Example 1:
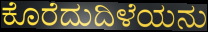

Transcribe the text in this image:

ಕೊರೆದುದಿಳೆಯನು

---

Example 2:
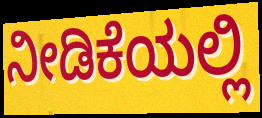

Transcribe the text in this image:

ನೀಡಿಕೆಯಲ್ಲಿ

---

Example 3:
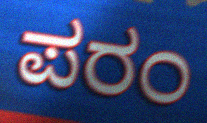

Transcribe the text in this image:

ಪರಂ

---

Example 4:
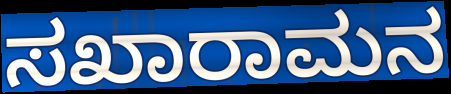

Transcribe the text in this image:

ಸಖಾರಾಮನ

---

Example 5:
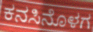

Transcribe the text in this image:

ಕನಸಿನೊಳಗ